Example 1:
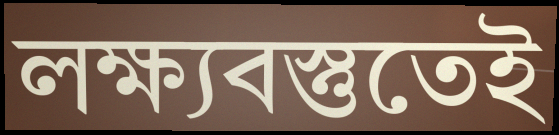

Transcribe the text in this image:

লক্ষ্যবস্তুতেই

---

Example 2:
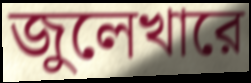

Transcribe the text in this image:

জুলেখারে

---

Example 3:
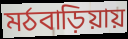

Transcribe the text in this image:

মঠবাড়িয়ায়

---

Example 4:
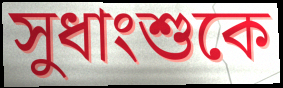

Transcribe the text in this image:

সুধাংশুকে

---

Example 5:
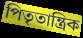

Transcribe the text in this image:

পিতৃতান্ত্রিক